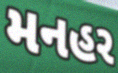
મનહર